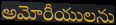
అమోరీయులను